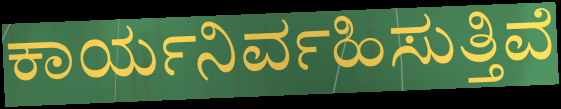
ಕಾರ್ಯನಿರ್ವಹಿಸುತ್ತಿವೆ